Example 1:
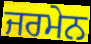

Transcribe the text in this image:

ਜਰਮੇਨ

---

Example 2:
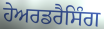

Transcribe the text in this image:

ਹੇਅਰਡਰੈਸਿੰਗ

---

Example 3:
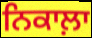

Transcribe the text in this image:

ਨਿਕਾਲ਼ਾ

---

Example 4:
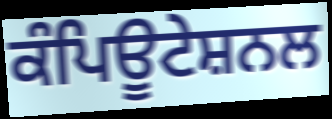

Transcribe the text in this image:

ਕੰਪਿਊਟੇਸ਼ਨਲ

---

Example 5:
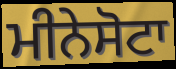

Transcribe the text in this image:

ਮੀਨੇਸੋਟਾ